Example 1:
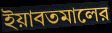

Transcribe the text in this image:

ইয়াবতমালের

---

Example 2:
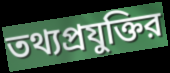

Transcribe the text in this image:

তথ্যপ্রযুক্তির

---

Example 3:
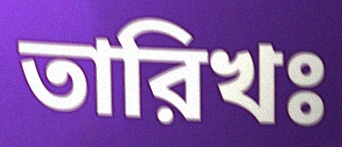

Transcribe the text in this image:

তারিখঃ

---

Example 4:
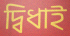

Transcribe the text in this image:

দ্বিধাই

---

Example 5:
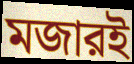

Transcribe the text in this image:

মজারই